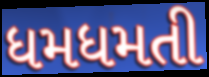
ધમધમતી